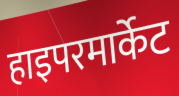
हाइपरमार्केट